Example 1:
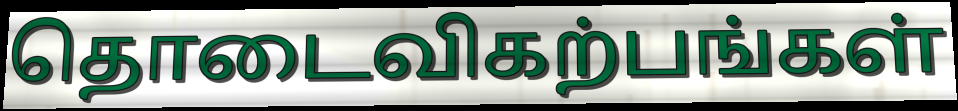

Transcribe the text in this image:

தொடைவிகற்பங்கள்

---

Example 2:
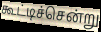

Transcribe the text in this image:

கூட்டிச்சென்று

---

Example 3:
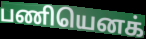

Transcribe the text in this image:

பணியெனக்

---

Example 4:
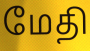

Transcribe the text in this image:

மேதி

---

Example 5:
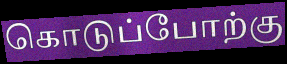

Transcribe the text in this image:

கொடுப்போற்கு